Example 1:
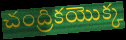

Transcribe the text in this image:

చంద్రికయొక్క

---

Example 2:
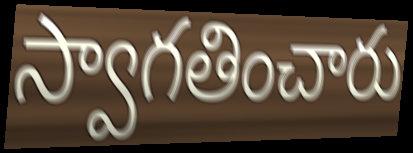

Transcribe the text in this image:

స్వాగతించారు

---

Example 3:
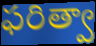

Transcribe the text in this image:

ఫరిత్వా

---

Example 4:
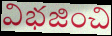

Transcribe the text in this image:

విభజించి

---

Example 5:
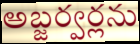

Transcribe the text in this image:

అబ్జర్వర్లను